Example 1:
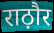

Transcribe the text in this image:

राठ़ौर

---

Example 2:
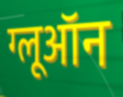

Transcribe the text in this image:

ग्लूऑन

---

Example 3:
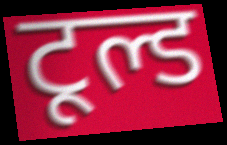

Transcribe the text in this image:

टूल्ड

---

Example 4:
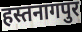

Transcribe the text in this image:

हस्तनागपुर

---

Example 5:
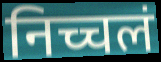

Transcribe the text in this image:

निच्चलं